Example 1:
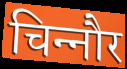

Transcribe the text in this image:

चिन्‍नौर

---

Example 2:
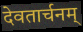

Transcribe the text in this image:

देवतार्चनम्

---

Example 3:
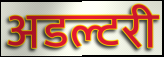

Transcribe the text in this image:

अडल्टरी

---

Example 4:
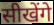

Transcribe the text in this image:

सीखेंगे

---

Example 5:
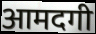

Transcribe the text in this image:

आमदगी